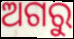
ଅଗରୁ